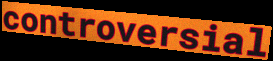
controversial